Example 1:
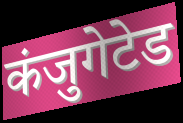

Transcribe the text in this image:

कंजुगेटेड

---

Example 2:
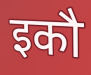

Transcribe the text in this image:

इकौ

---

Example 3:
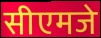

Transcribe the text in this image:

सीएमजे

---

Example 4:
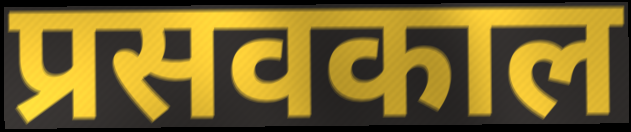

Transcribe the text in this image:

प्रसवकाल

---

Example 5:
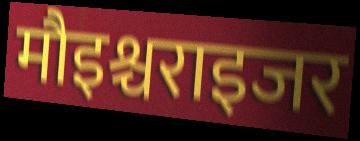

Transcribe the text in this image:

मौइश्चराइजर